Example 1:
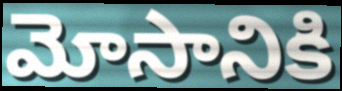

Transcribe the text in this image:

మోసానికి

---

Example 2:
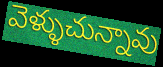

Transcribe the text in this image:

వెళ్ళుచున్నావు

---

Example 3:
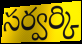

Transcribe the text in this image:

సర్వర్కి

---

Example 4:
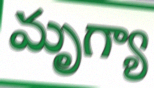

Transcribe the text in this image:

మృగ్యా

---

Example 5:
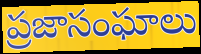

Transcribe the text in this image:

ప్రజాసంఘాలు